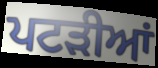
ਪਟਡ਼ੀਆਂ